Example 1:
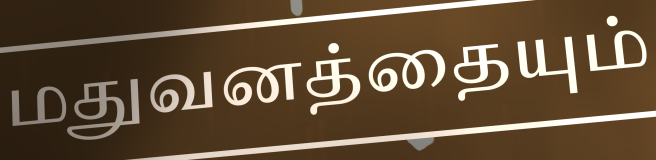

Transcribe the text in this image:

மதுவனத்தையும்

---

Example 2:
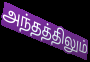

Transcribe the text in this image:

அந்தத்திலும்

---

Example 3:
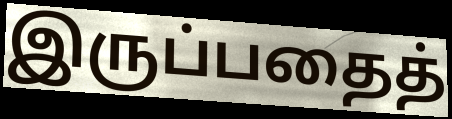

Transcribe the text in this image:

இருப்பதைத்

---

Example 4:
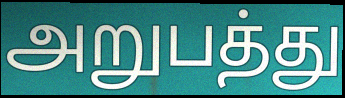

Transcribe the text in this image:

அறுபத்து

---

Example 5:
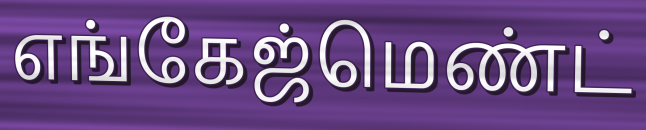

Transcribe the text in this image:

எங்கேஜ்மெண்ட்